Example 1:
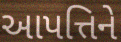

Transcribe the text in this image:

આપત્તિને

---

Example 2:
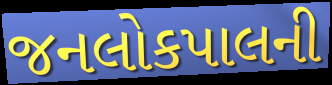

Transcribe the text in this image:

જનલોકપાલની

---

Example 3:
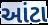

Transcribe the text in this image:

આંટા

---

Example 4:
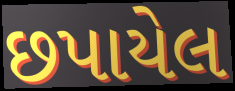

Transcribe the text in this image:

છપાયેલ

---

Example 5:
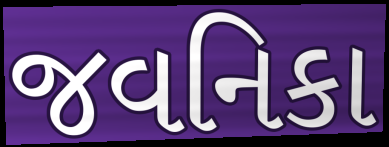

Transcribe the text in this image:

જવનિકા